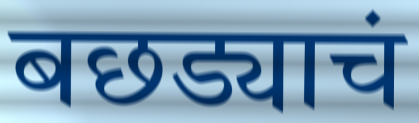
बछड्याचं